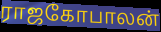
ராஜகோபாலன்